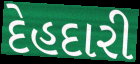
દેહદારી